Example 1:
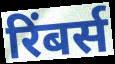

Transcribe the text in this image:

रिंबर्स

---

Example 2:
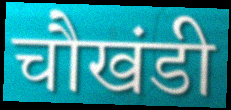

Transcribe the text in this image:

चौखंडी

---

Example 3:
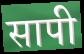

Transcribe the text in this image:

सापी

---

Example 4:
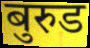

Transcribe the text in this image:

बुरुड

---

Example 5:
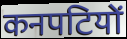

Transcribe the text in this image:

कनपटियों